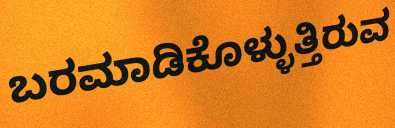
ಬರಮಾಡಿಕೊಳ್ಳುತ್ತಿರುವ